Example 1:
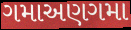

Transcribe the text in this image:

ગમાઅણગમા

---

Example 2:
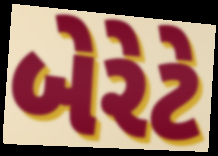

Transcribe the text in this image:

બેરેટે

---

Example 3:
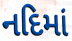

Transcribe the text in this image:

નદિમાં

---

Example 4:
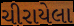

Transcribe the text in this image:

ચીરાયેલા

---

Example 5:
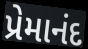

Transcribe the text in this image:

પ્રેમાનંદ